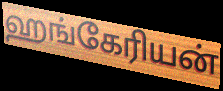
ஹங்கேரியன்